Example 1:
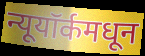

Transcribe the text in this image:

न्यूयॉर्कमधून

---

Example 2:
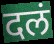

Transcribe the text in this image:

दलं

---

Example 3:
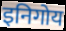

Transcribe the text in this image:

इनिगोय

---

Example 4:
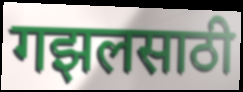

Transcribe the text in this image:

गझलसाठी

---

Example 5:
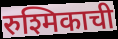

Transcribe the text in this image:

रुश्मिकाची